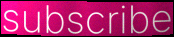
subscribe